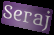
Seraj